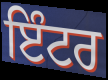
ਇੰਟਰ